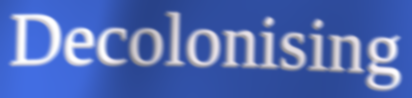
Decolonising